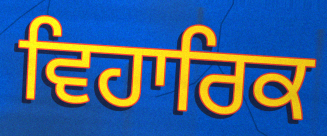
ਵਿਹਾਰਿਕ